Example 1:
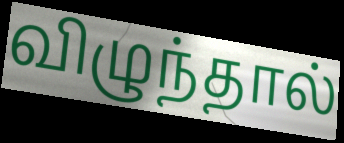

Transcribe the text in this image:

விழுந்தால்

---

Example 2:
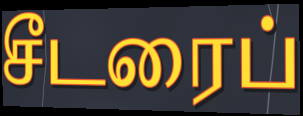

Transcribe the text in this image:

சீடரைப்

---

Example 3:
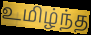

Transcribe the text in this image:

உமிழ்ந்த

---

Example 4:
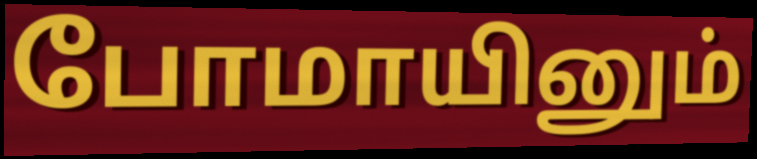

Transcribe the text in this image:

போமாயினும்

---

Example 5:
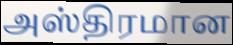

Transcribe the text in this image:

அஸ்திரமான